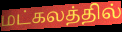
மட்கலத்தில்